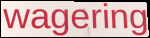
wagering